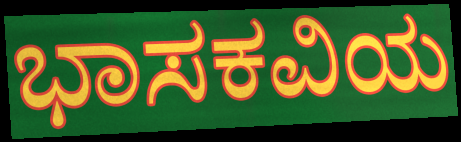
ಭಾಸಕವಿಯ